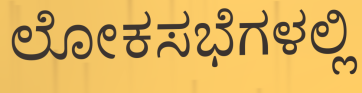
ಲೋಕಸಭೆಗಳಲ್ಲಿ